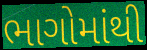
ભાગોમાંથી